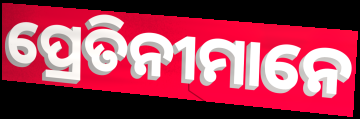
ପ୍ରେତିନୀମାନେ